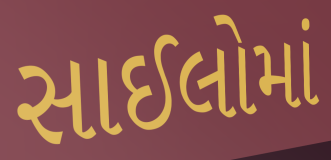
સાઈલોમાં